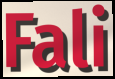
Fali